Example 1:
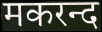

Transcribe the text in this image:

मकरन्द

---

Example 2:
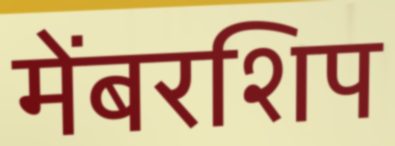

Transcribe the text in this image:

मेंबरशिप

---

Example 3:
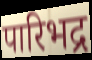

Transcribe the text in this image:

पारिभद्र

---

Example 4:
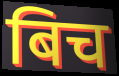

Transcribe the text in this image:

बिच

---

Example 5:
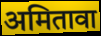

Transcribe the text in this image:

अमितावा